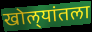
खोल्यांतला